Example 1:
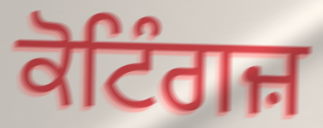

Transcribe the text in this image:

ਕੋਟਿੰਗਜ਼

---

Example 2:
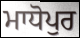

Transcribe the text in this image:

ਮਾਧੋਪੁਰ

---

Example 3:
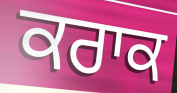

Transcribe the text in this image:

ਕਰਾਕ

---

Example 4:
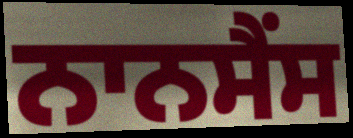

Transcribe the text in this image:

ਨਾਨਸੈਂਸ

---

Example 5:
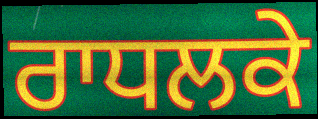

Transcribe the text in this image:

ਰਾਧਲਕੇ